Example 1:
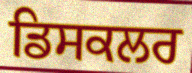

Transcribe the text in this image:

ਡਿਸਕਲਰ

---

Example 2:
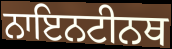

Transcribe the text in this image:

ਨਾਇਨਟੀਨਥ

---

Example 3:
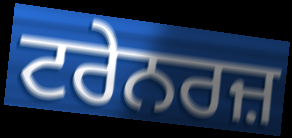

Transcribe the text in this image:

ਟਰੇਨਰਜ਼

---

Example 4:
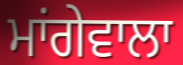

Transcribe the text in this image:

ਮਾਂਗੇਵਾਲਾ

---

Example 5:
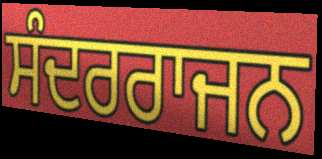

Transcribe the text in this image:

ਸੰਦਰਰਾਜਨ